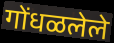
गोंधळलेले